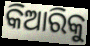
କିଆରିକୁ